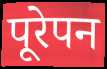
पूरेपन